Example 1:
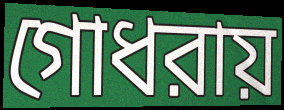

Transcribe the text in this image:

গোধরায়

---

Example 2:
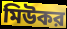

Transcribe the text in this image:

মিউকর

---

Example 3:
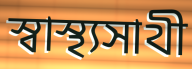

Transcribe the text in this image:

স্বাস্থ্যসাথী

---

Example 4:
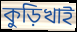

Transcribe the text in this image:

কুড়িখাই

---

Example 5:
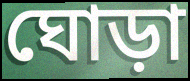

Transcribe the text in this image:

ঘোড়া